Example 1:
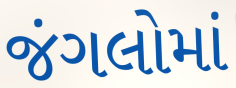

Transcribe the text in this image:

જંગલોમાં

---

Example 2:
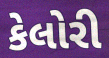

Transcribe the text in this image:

કેલોરી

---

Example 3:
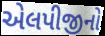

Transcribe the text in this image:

એલપીજીનો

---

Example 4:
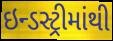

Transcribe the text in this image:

ઇન્ડસ્ટ્રીમાંથી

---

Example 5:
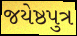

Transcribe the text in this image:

જયેષ્ઠપુત્ર